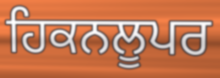
ਹਿਕਨਲੂਪਰ